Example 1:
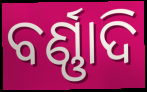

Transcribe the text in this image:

ବର୍ଣ୍ଣାଦି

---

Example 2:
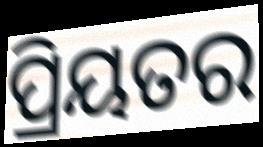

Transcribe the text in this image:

ପ୍ରିୟତର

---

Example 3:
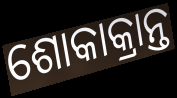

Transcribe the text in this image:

ଶୋକାକ୍ରାନ୍ତ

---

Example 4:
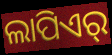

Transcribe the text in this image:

ଲାପିଏର୍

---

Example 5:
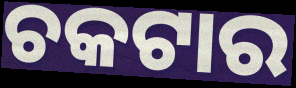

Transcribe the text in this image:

ଚକଟାର